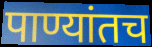
पाण्यांतच